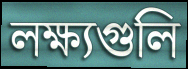
লক্ষ্যগুলি